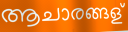
ആചാരങ്ങള്